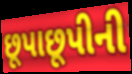
છૂપાછૂપીની